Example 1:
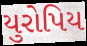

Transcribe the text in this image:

યુરોપિય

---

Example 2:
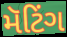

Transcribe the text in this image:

મૅટિંગ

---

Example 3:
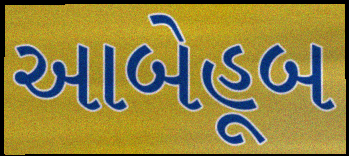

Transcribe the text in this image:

આબેહૂબ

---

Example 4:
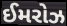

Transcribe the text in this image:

ઈમરોઝ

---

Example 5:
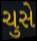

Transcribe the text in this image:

ચુસે